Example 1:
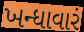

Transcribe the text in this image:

ખન્ધાવારં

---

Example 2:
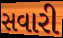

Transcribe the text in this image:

સવારી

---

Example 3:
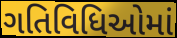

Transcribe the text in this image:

ગતિવિધિઓમાં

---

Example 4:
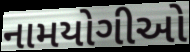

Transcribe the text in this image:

નામયોગીઓ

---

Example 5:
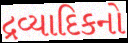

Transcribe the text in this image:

દ્રવ્યાદિકનો